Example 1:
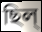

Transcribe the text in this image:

ছিল্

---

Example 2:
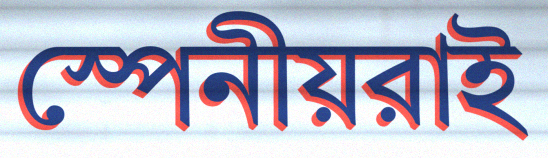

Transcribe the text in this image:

স্পেনীয়রাই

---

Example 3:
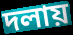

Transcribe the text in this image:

দলায়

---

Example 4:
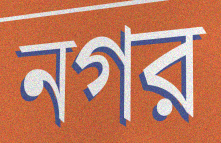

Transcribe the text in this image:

নগর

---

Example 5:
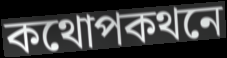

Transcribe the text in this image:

কথোপকথনে